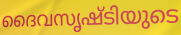
ദൈവസൃഷ്ടിയുടെ